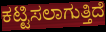
ಕಟ್ಟಿಸಲಾಗುತ್ತಿದೆ